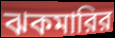
ঝকমারির